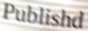
Publishd